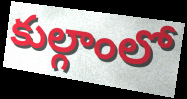
కుల్గాంలో